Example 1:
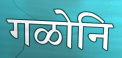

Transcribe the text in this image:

गळोनि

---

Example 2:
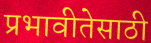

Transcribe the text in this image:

प्रभावीतेसाठी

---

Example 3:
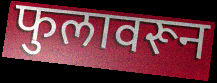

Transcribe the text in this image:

फुलावरून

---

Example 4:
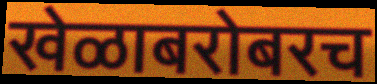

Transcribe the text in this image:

खेळाबरोबरच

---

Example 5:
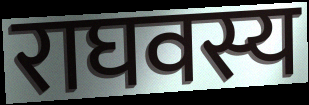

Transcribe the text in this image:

राघवस्य